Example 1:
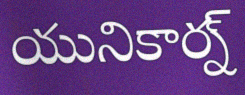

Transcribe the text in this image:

యునికార్న్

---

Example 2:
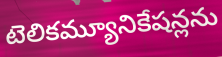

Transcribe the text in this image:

టెలికమ్యూనికేషన్లను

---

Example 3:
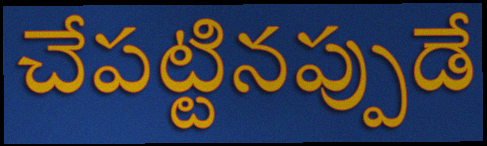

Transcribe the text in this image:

చేపట్టినప్పుడే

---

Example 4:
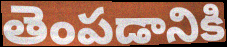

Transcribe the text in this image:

తెంపడానికి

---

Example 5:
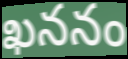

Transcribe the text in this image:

ఖననం